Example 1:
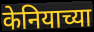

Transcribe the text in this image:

केनियाच्या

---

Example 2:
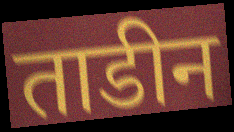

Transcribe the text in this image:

ताडीन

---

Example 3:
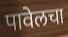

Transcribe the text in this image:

पावेलचा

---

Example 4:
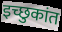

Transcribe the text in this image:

इच्छुकांत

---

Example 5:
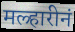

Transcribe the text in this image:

मल्हारीनं